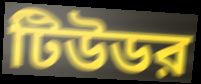
টিউডর